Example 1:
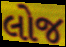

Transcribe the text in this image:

લોજ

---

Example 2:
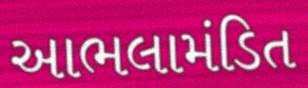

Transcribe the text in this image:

આભલામંડિત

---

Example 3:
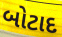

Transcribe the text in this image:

બોટાદ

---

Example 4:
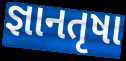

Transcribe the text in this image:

જ્ઞાનતૃષા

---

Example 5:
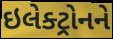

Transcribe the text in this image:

ઇલેક્ટ્રોનને